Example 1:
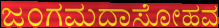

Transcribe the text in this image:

ಜಂಗಮದಾಸೋಹವ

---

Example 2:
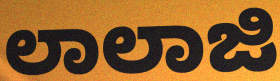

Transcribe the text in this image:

ಲಾಲಾಜಿ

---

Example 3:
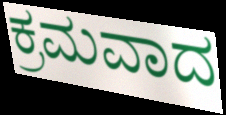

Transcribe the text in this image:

ಕ್ರಮವಾದ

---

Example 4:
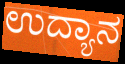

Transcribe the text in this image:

ಉದ್ಯಾನ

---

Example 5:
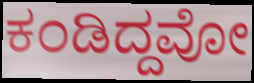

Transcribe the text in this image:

ಕಂಡಿದ್ದವೋ